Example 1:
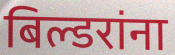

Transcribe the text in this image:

बिल्डरांना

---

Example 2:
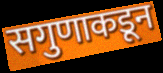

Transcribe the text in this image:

सगुणाकडून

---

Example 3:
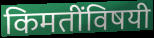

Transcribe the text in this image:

किमतींविषयी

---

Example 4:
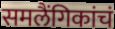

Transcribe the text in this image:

समलैंगिकांचं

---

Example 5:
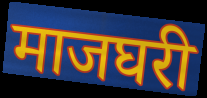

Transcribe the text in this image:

माजघरी